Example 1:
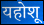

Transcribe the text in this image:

यहोशू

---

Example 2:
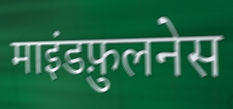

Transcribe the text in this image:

माइंडफ़ुलनेस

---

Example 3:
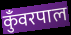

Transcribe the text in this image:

कुँवरपाल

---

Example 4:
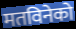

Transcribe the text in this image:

मतविनेको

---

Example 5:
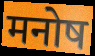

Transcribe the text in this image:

मनोष